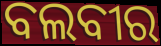
ବଲବୀର